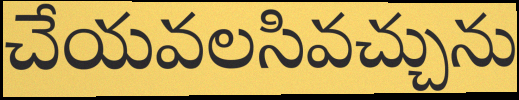
చేయవలసివచ్చును